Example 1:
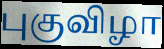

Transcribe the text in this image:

புகுவிழா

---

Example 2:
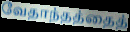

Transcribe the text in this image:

வேதாந்தத்தைத்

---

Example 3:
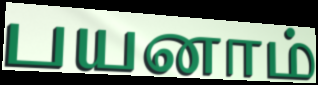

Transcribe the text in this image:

பயனாம்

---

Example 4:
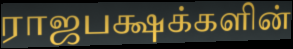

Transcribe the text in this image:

ராஜபக்ஷக்களின்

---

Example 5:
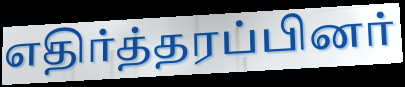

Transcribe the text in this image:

எதிர்த்தரப்பினர்